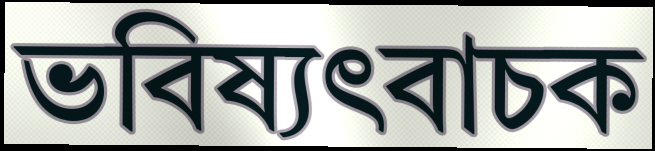
ভবিষ্যৎবাচক